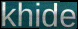
khide